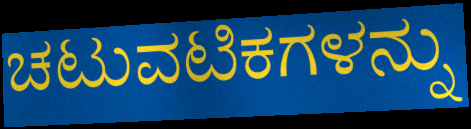
ಚಟುವಟಿಕಗಳನ್ನು